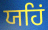
ਯਹਿਂ